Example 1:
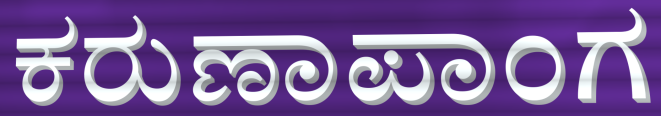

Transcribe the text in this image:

ಕರುಣಾಪಾಂಗ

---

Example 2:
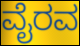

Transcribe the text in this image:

ವೈರವ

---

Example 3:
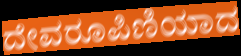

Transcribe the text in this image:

ದೇವರೂಪಿಣಿಯಾದ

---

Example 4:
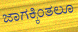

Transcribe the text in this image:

ಜಾಗಕ್ಕಿಂತಲೂ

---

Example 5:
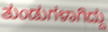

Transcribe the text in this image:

ತುಂಡುಗಳಾಗಿದ್ದು